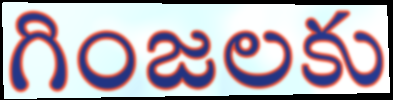
గింజలకు